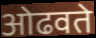
ओढवते